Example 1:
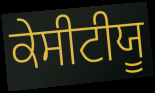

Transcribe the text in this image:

ਕੇਸੀਟੀਯੂ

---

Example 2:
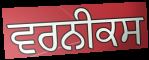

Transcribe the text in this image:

ਵਰਨੀਕਸ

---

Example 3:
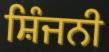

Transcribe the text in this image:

ਸ਼ਿੰਜਨੀ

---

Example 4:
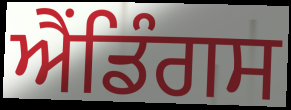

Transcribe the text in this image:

ਐਂਡਿੰਗਸ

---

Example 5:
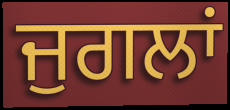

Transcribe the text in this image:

ਜੁਗਲਾਂ